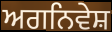
ਅਗਨਿਵੇਸ਼